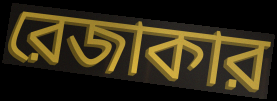
রেজাকার